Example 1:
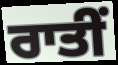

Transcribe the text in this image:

ਰਾਤੀਂ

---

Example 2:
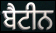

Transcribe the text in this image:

ਬੈਟੀਨ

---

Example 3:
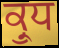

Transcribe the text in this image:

ਕ੍ਰੁਧ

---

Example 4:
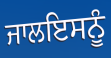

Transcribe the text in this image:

ਜਾਲਇਸਨੂੰ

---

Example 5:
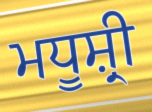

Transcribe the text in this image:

ਮਧੂਸ਼੍ਰੀ